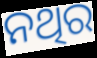
ନଥିର